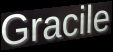
Gracile